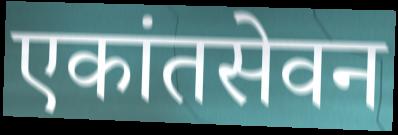
एकांतसेवन